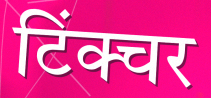
टिंक्चर